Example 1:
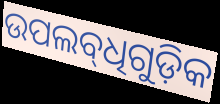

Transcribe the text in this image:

ଉପଲବ୍‌ଧିଗୁଡ଼ିକ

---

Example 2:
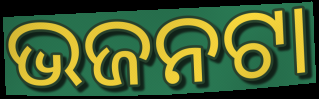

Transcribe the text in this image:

ଭଜନଟା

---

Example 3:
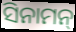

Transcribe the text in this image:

ସିନାମନ୍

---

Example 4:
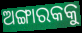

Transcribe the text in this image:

ଅଙ୍ଗାରକକୁ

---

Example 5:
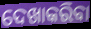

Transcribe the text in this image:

ଦେଖାକରିବା